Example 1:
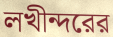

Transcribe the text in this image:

লখীন্দরের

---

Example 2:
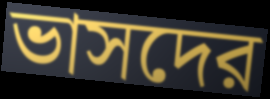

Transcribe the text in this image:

ভাসদের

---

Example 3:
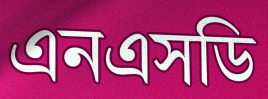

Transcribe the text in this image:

এনএসডি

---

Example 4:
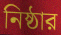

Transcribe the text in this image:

নিষ্ঠার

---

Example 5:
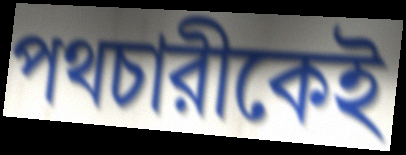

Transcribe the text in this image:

পথচারীকেই